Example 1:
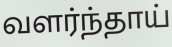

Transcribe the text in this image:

வளர்ந்தாய்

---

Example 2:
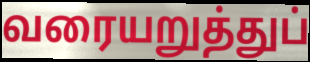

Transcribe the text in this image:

வரையறுத்துப்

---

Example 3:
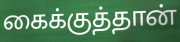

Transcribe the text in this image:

கைக்குத்தான்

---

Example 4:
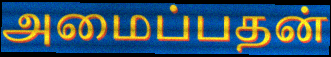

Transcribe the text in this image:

அமைப்பதன்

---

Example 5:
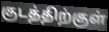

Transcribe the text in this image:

குடத்திற்குள்